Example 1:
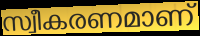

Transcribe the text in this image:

സ്വീകരണമാണ്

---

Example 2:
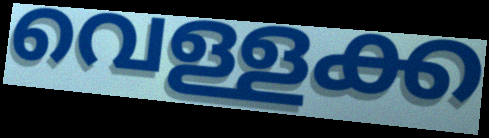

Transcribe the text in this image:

വെള്ളക്ക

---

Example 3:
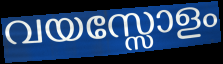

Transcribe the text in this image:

വയസ്സോളം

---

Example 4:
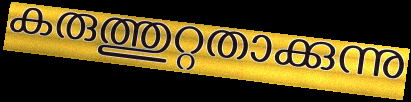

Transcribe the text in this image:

കരുത്തുറ്റതാക്കുന്നു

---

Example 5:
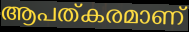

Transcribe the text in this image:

ആപത്കരമാണ്